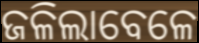
ଜଳିଲାବେଳେ